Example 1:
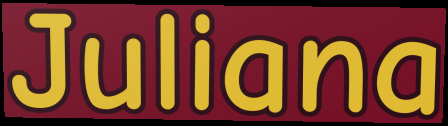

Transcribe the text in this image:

Juliana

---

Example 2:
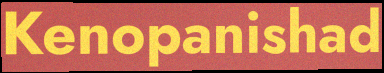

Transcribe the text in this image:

Kenopanishad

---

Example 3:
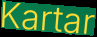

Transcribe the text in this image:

Kartar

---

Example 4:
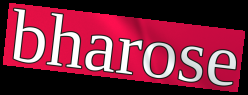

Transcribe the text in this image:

bharose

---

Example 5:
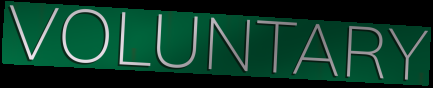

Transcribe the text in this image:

VOLUNTARY